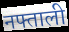
नफ्ताली